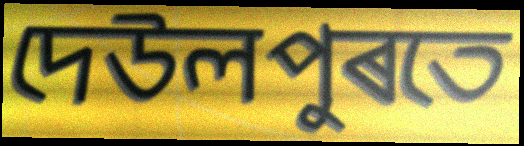
দেউলপুৰতে